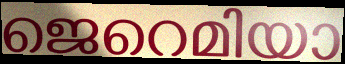
ജെറെമിയാ